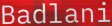
Badlani